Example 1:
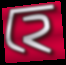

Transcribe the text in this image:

হে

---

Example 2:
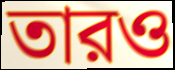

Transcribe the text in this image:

তারও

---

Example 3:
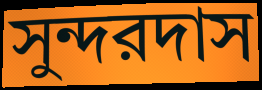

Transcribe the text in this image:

সুন্দরদাস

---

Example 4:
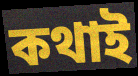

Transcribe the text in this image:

কথাই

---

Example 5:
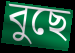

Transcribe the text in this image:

বুছে